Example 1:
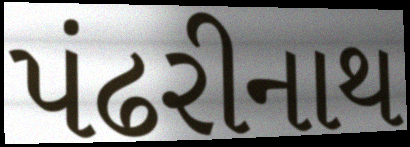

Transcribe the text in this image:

પંઢરીનાથ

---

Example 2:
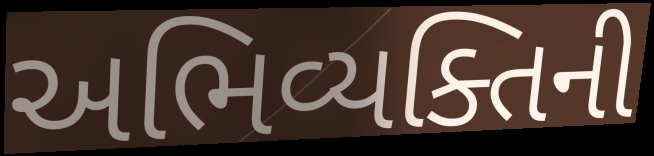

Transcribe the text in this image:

અભિવ્યક્તિની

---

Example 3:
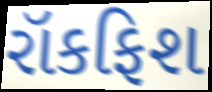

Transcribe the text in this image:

રૉકફિશ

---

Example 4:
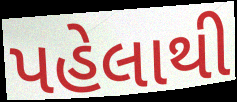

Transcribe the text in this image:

પહેલાથી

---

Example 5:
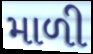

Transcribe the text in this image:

માળી